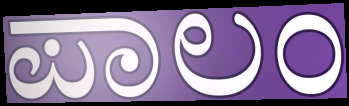
ಪಾಲಂ